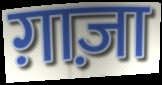
ग़ाज़ा